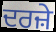
ਦਰਜ਼ੇ